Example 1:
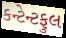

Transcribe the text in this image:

કન્ટેન્ટફુલ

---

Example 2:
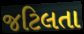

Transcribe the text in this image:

જટિલતા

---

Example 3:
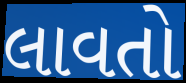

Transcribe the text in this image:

લાવતો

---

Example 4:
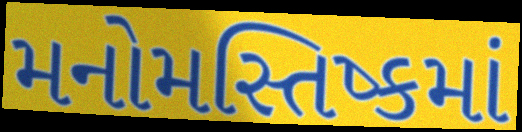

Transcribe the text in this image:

મનોમસ્તિષ્કમાં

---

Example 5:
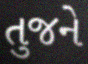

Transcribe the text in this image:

તુજને